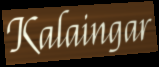
Kalaingar